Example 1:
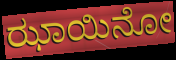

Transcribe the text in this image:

ಝಾಯಿನೋ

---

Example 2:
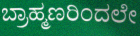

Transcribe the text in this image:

ಬ್ರಾಹ್ಮಣರಿಂದಲೇ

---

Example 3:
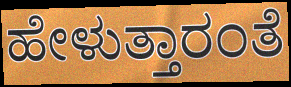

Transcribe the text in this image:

ಹೇಳುತ್ತಾರಂತೆ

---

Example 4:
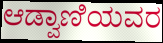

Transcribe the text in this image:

ಆಡ್ವಾಣಿಯವರ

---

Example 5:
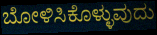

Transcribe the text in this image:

ಬೋಳಿಸಿಕೊಳ್ಳುವುದು